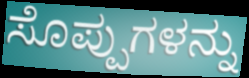
ಸೊಪ್ಪುಗಳನ್ನು